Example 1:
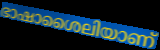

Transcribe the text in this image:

ഭാഷാശൈലിയാണ്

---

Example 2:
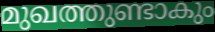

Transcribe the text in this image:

മുഖത്തുണ്ടാകും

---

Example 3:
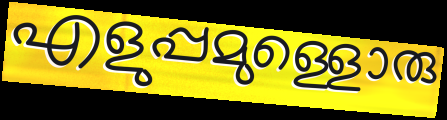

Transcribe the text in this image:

എളുപ്പമുള്ളൊരു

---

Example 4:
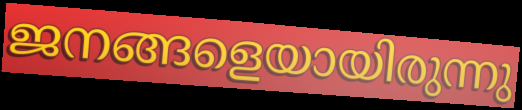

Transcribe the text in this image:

ജനങ്ങളെയായിരുന്നു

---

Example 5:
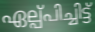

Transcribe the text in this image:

ഏല്പ്പിച്ചിട്ട്